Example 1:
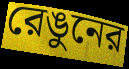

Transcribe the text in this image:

রেঙুনের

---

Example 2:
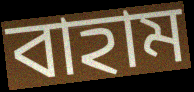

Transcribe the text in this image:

বাহাম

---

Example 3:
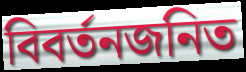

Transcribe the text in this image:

বিবর্তনজনিত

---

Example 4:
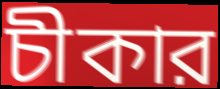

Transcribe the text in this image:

চীকার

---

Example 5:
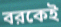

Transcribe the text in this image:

বরকেই